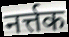
नर्त्तक